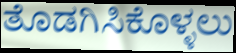
ತೊಡಗಿಸಿಕೊಳ್ಳಲು